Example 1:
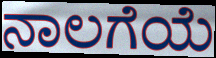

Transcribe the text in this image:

ನಾಲಗೆಯೆ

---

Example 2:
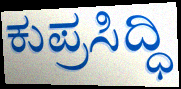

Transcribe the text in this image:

ಕುಪ್ರಸಿದ್ಧಿ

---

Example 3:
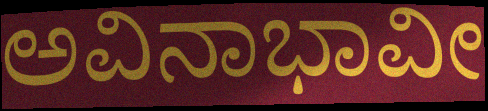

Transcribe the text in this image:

ಅವಿನಾಭಾವೀ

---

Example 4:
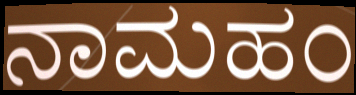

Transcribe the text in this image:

ನಾಮಹಂ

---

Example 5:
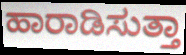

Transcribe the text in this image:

ಹಾರಾಡಿಸುತ್ತಾ